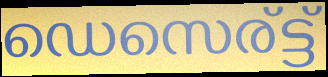
ഡെസെര്ട്ട്